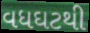
વધઘટથી